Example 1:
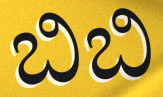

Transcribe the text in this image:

ಬಿಬಿ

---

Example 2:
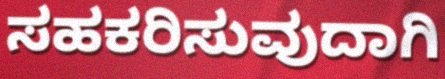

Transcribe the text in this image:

ಸಹಕರಿಸುವುದಾಗಿ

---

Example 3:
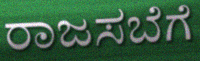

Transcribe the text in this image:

ರಾಜಸಬೆಗೆ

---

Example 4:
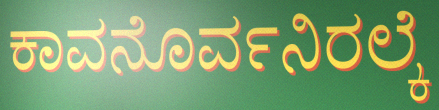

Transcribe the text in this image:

ಕಾವನೊರ್ವನಿರಲ್ಕೆ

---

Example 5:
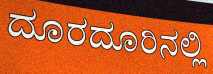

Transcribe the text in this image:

ದೂರದೂರಿನಲ್ಲಿ